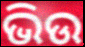
ଭିଉ